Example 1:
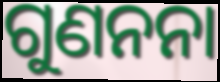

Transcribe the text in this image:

ଗୁଣନନା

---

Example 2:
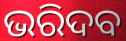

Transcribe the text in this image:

ଭରିଦବ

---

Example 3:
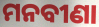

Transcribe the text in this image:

ମନବୀଣା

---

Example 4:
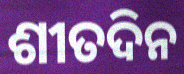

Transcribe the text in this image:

ଶୀତଦିନ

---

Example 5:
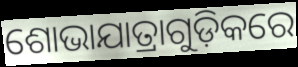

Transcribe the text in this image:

ଶୋଭାଯାତ୍ରାଗୁଡ଼ିକରେ